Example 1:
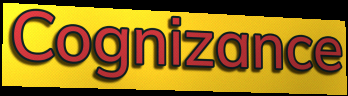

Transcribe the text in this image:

Cognizance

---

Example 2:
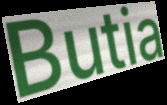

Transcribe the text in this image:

Butia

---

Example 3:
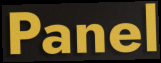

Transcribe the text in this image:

Panel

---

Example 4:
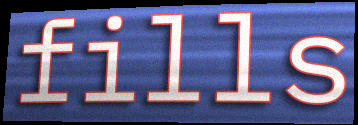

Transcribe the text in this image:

fills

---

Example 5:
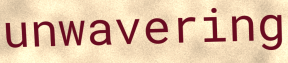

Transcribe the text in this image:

unwavering